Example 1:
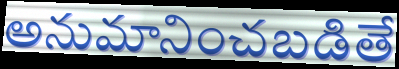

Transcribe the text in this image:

అనుమానించబడితే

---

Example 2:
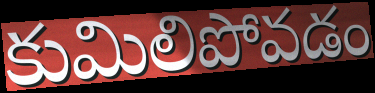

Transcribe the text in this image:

కుమిలిపోవడం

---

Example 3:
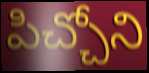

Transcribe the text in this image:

పిచ్చోని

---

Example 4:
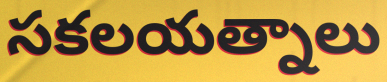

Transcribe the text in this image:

సకలయత్నాలు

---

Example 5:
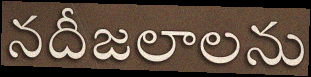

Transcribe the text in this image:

నదీజలాలను